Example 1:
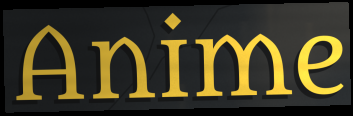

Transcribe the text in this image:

Anime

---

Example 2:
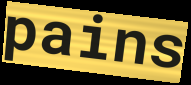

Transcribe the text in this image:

pains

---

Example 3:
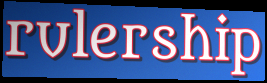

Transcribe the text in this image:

rulership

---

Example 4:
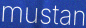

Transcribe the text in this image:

mustan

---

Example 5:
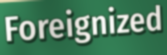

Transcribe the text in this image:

Foreignized